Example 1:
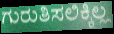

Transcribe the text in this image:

ಗುರುತಿಸಲಿಕ್ಕಿಲ್ಲ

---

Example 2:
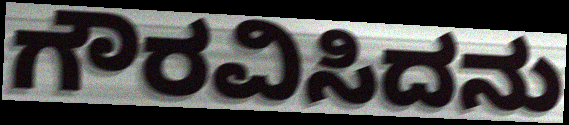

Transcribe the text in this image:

ಗೌರವಿಸಿದನು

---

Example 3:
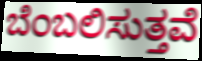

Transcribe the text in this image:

ಬೆಂಬಲಿಸುತ್ತವೆ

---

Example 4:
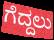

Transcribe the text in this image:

ಗೆದ್ದಲು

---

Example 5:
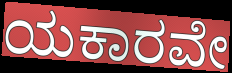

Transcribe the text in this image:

ಯಕಾರವೇ